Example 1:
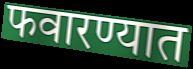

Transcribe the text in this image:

फवारण्यात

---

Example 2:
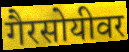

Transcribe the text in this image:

गैरसोयीवर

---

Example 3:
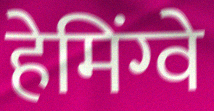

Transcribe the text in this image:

हेमिंग्वे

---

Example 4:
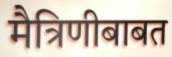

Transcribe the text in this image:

मैत्रिणीबाबत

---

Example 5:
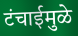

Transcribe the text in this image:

टंचाईमुळे